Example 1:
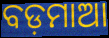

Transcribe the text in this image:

ବଡ଼ମାଆ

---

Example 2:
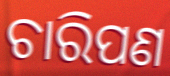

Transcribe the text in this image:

ଚାରିପଣ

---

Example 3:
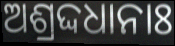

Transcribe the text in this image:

ଅଶ୍ରଦ୍ଦଧାନାଃ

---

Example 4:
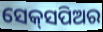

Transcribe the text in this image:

ସେକ୍‌ସପିଅର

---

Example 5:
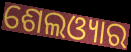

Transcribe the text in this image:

ଶେଲଓ୍ୟାର